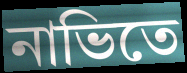
নাভিতে